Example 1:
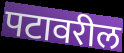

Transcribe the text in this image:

पटावरील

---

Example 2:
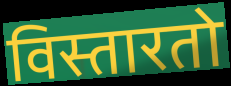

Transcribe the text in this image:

विस्तारतो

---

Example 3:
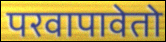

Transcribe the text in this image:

परवापावेतो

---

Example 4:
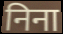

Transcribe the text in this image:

निना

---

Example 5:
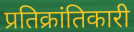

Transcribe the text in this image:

प्रतिक्रांतिकारी